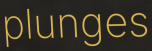
plunges